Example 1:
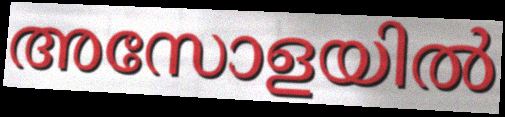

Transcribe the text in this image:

അസോളയിൽ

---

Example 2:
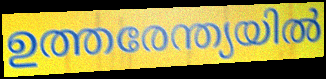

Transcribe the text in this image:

ഉത്തരേന്ത്യയിൽ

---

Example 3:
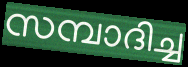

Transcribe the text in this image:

സമ്പാദിച്ച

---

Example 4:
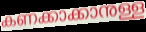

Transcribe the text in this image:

കണക്കാക്കാനുള്ള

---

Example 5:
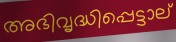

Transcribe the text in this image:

അഭിവൃദ്ധിപ്പെട്ടാല്